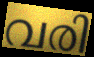
വരി